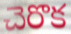
చెరొక